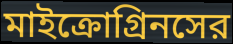
মাইক্রোগ্রিনসের